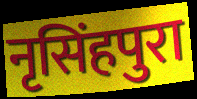
नृसिंहपुरा